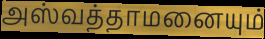
அஸ்வத்தாமனையும்